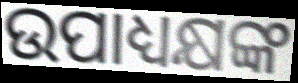
ଉପାଧ୍ୟକ୍ଷଙ୍କ